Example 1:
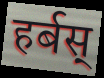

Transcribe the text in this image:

हर्बस्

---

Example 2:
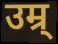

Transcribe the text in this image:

उम्र्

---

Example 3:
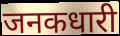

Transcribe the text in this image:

जनकधारी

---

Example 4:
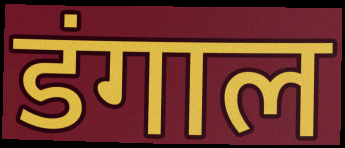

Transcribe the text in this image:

डंगाल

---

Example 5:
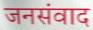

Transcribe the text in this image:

जनसंवाद